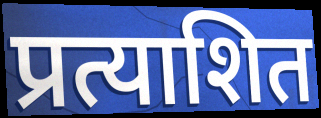
प्रत्याशित